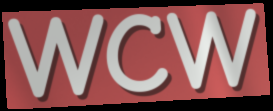
WCW